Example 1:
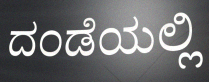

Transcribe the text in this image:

ದಂಡೆಯಲ್ಲಿ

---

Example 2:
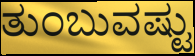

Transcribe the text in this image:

ತುಂಬುವಷ್ಟು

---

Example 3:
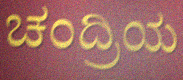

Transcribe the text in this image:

ಚಂದ್ರಿಯ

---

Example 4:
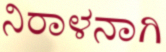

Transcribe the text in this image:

ನಿರಾಳನಾಗಿ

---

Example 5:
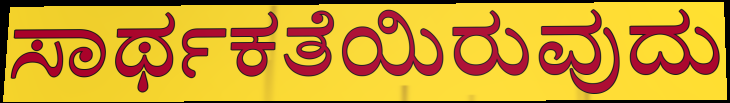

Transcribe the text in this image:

ಸಾರ್ಥಕತೆಯಿರುವುದು